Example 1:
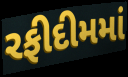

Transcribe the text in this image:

રફીદીમમાં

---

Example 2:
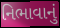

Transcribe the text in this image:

નિભાવાનું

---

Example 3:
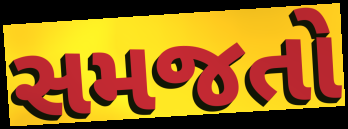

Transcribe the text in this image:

સમજતો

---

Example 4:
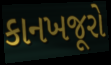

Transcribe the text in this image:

કાનખજૂરો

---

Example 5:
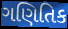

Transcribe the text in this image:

ગણિતિક